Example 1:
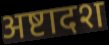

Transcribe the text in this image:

अष्टादश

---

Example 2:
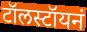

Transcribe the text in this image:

टॉलस्टॉयनं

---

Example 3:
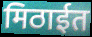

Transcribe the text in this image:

मिठाईत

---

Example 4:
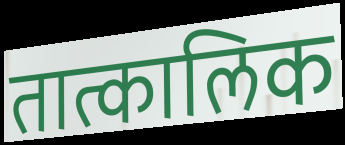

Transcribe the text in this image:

तात्कालिक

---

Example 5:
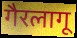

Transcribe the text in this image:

गैरलागू